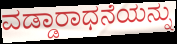
ವಡ್ಡಾರಾಧನೆಯನ್ನು